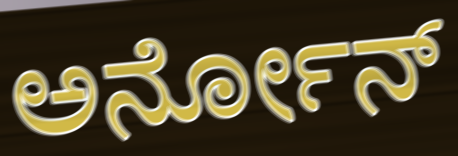
ಅರ್ನೋನ್